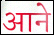
आने